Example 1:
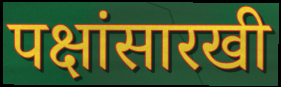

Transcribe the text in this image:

पक्षांसारखी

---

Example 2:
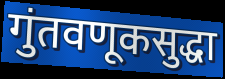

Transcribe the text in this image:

गुंतवणूकसुद्धा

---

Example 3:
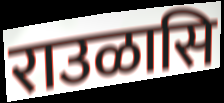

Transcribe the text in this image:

राउळासि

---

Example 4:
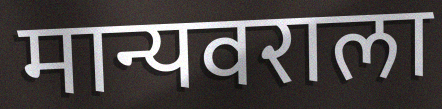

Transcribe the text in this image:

मान्यवराला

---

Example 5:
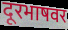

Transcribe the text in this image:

दूरभाषवर